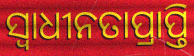
ସ୍ଵାଧୀନତାପ୍ରାପ୍ତି